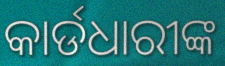
କାର୍ଡଧାରୀଙ୍କ